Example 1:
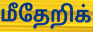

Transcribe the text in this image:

மீதேறிக்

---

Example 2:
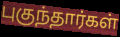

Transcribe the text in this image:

புகுந்தார்கள்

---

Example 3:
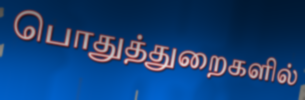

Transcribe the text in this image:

பொதுத்துறைகளில்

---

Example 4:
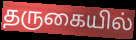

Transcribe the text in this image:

தருகையில்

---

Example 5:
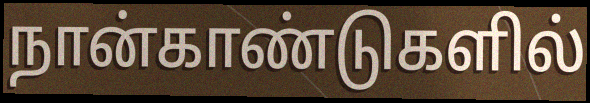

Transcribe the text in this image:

நான்காண்டுகளில்